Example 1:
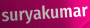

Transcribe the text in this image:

suryakumar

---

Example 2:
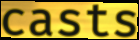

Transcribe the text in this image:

casts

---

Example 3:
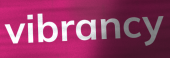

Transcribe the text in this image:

vibrancy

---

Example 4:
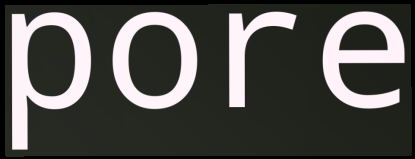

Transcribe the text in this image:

pore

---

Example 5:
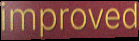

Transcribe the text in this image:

improved